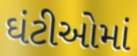
ઘંટીઓમાં